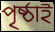
পৃষ্ঠাই